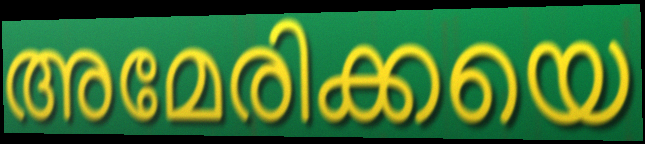
അമേരിക്കയെ